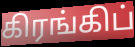
கிரங்கிப்